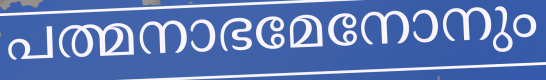
പത്മനാഭമേനോനും